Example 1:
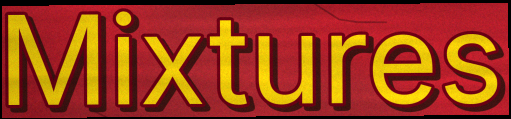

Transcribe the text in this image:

Mixtures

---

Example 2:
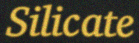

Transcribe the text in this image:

Silicate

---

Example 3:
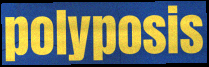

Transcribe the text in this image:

polyposis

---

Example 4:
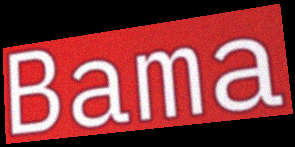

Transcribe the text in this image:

Bama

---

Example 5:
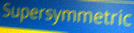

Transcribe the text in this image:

Supersymmetric